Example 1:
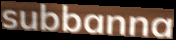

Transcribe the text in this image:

subbanna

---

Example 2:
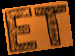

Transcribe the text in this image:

ET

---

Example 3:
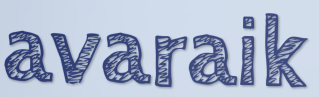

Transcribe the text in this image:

avaraik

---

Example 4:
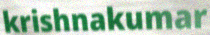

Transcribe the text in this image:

krishnakumar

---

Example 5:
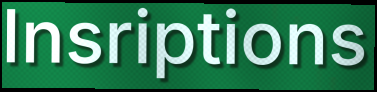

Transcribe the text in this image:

Insriptions